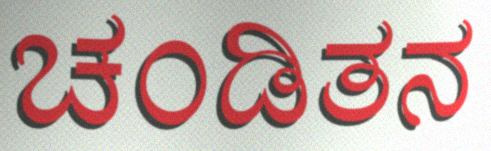
ಚಂಡಿತನ